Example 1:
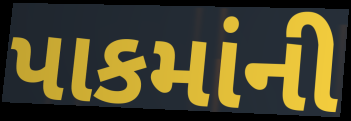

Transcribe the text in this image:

પાકમાંની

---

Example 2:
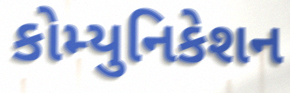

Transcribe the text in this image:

કોમ્યુનિકેશન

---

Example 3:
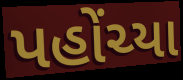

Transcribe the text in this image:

પહોંચ્યા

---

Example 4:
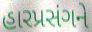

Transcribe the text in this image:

હારપ્રસંગને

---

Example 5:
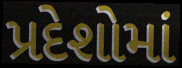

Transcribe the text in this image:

પ્રદેશોમાં